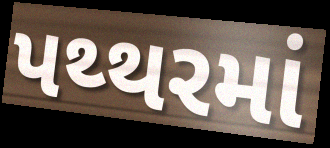
પથ્થરમાં